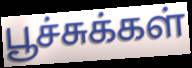
பூச்சுக்கள்